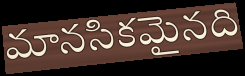
మానసికమైనది